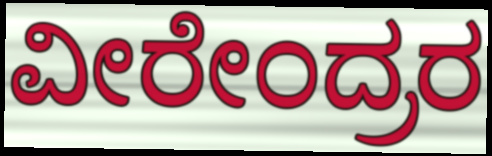
ವೀರೇಂದ್ರರ